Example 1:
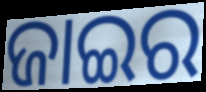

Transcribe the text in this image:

ଜାଇର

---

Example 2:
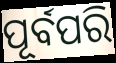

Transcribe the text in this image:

ପୂର୍ବପରି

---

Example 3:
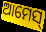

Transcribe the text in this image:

ଆମେସ୍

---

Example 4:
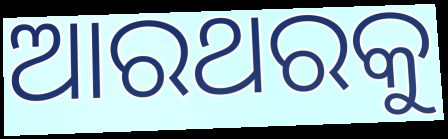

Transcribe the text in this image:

ଆରଥରକୁ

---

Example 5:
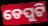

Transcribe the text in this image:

ଡେପୁଟି